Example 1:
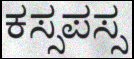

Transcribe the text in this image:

ಕಸ್ಸಪಸ್ಸ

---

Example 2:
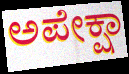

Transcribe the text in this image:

ಅಪೇಕ್ಷಾ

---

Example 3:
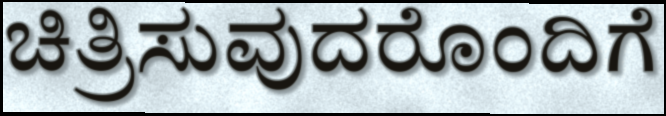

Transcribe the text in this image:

ಚಿತ್ರಿಸುವುದರೊಂದಿಗೆ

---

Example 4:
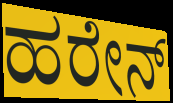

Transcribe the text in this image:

ಹರೇನ್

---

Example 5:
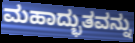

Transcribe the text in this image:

ಮಹಾದ್ಭುತವನ್ನು